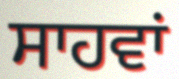
ਸਾਹਵਾਂ